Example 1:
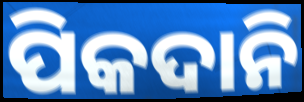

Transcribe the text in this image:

ପିକଦାନି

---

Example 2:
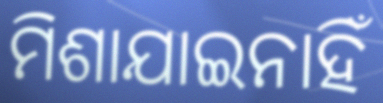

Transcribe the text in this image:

ମିଶାଯାଇନାହିଁ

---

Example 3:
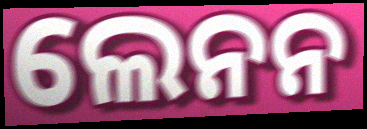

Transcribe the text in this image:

ଲେନନ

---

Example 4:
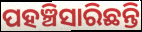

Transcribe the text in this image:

ପହଞ୍ଚିସାରିଛନ୍ତି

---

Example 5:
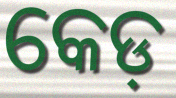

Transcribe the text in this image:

କେଡ଼